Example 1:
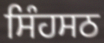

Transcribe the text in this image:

ਸਿੰਹਸਠ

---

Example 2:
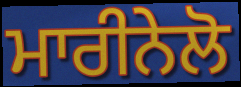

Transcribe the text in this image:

ਮਾਰੀਨੇਲੋ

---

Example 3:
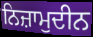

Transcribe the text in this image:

ਨਿਜ਼ਾਮੁਦੀਨ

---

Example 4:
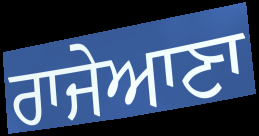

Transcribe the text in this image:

ਰਾਜੇਆਣਾ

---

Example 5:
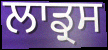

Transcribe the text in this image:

ਲਾਡ੍ਰਸ